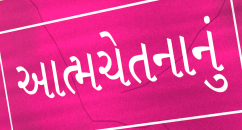
આત્મચેતનાનું